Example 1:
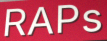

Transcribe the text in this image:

RAPs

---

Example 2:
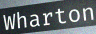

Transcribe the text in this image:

Wharton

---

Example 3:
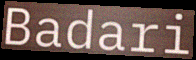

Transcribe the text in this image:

Badari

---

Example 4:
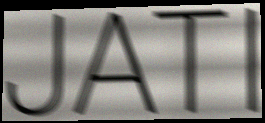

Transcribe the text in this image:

JATI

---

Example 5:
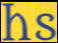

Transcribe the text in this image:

hs